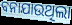
ବନାଯାଉଥିଲା